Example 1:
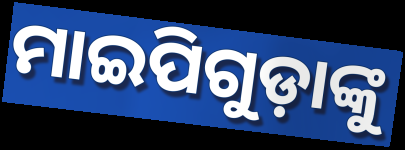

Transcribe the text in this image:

ମାଇପିଗୁଡ଼ାଙ୍କୁ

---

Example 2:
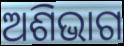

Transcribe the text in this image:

ଅଶିଭାଗ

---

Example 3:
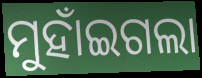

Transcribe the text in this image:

ମୁହାଁଇଗଲା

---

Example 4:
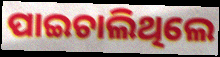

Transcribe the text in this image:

ପାଇଚାଲିଥିଲେ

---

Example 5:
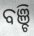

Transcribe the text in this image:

ବଞ୍ଚି